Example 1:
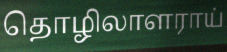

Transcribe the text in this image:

தொழிலாளராய்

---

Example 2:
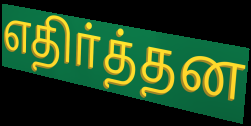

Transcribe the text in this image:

எதிர்த்தன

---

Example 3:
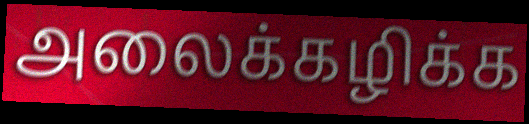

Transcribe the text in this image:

அலைக்கழிக்க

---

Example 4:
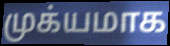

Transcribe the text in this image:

முக்யமாக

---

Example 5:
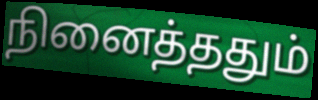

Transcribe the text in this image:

நினைத்ததும்